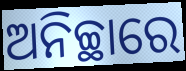
ଅନିଚ୍ଛାରେ